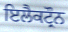
ਇਲੈਕਟ੍ਰੌਨ